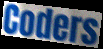
Coders